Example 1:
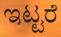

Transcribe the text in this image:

ಇಟ್ಟರೆ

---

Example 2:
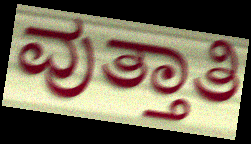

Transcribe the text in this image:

ವುತ್ತಾತಿ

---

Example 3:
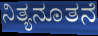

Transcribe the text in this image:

ನಿತ್ಯನೂತನೆ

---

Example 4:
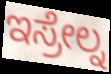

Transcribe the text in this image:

ಇಸ್ರೇಲ್ನ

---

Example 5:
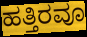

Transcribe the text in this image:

ಹತ್ತಿರವೂ